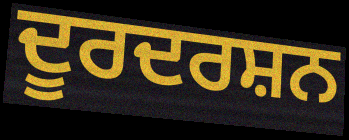
ਦੂਰਦਰਸ਼ਨ